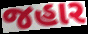
જહાર